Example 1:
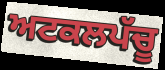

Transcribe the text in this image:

ਅਟਕਲਪੱਚੂ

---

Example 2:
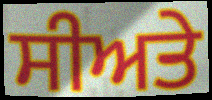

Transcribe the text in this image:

ਸੀਅਤੇ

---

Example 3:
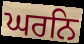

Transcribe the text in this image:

ਘਰਨਿ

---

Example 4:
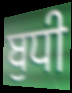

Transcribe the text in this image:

ਬੁਧੀ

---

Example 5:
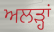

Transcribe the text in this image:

ਅਲੜ੍ਹਾਂ